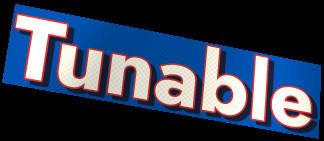
Tunable